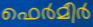
ഫെർമീർ